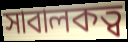
সাবালকত্ব